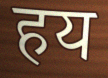
हय